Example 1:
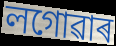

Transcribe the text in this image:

লগোৱাৰ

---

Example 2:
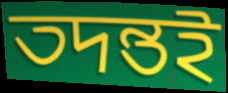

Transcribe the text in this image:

তদন্তই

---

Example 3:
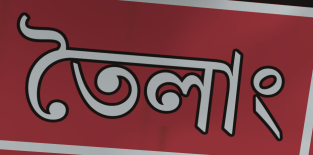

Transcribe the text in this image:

তৈলাং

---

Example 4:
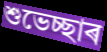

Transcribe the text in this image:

শুভেচ্ছাৰ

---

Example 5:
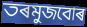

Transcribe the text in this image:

তৰমুজবোৰ